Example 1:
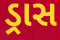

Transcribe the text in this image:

ડ્રાસ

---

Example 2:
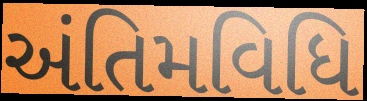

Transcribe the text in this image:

અંતિમવિધિ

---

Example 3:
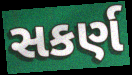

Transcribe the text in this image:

સકર્ણ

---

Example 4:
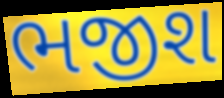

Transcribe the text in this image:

ભજીશ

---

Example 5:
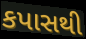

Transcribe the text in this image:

કપાસથી